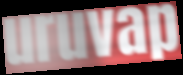
uruvap